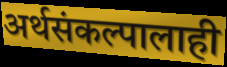
अर्थसंकल्पालाही